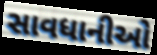
સાવધાનીઓ